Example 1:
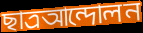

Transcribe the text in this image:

ছাত্রআন্দোলন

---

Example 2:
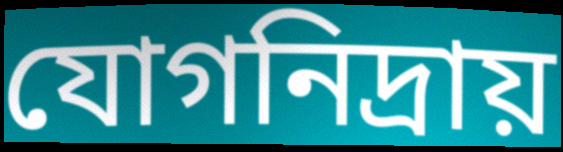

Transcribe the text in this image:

যোগনিদ্রায়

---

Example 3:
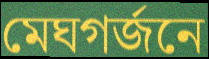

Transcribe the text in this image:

মেঘগর্জনে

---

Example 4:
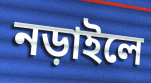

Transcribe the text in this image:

নড়াইলে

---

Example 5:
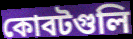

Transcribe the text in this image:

কোবটগুলি